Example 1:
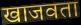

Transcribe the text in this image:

खाजवता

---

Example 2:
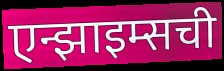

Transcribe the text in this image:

एन्झाइम्सची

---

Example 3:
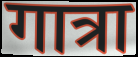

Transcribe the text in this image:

गात्रा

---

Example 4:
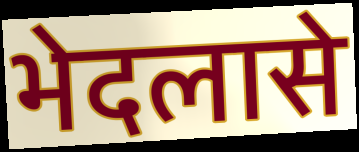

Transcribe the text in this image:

भेदलासे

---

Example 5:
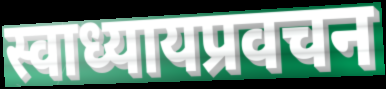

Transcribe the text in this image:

स्वाध्यायप्रवचन